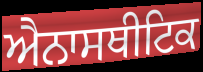
ਐਨਾਸਥੀਟਿਕ